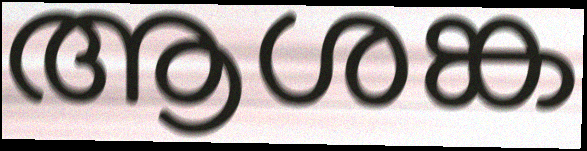
ആശങ്ക